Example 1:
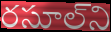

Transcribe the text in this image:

రసూల్‌ని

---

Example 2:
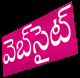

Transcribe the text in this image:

వెబ్‌సైట్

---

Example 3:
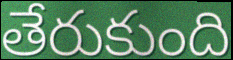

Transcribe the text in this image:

తేరుకుంది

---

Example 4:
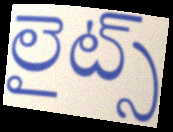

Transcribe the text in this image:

లైట్స్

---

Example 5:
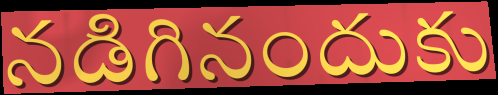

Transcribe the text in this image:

నడిగినందుకు